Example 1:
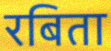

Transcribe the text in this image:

रबिता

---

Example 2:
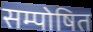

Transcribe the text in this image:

सम्पोषित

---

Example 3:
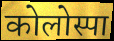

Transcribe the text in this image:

कोलोस्पा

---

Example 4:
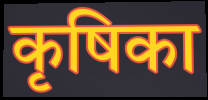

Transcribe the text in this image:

कृषिका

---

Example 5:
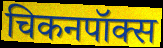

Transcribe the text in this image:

चिकनपॉक्स